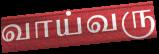
வாய்வரு